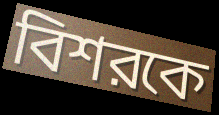
বিশরকে